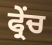
ਫ੍ਰੇੰਚ